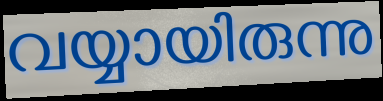
വയ്യായിരുന്നു